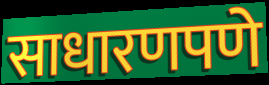
साधारणपणे